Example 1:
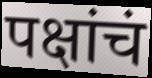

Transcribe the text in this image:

पक्षांचं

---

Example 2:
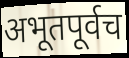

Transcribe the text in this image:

अभूतपूर्वच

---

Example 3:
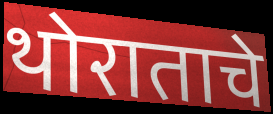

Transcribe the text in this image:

थोराताचे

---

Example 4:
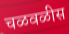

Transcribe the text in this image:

चळवळीस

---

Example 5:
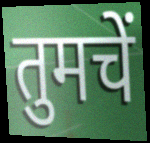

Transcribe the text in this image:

तुमचें